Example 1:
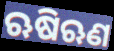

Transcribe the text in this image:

ଋଷିଋଣ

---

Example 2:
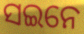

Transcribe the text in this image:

ସଇନେ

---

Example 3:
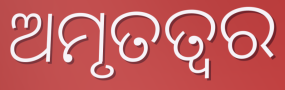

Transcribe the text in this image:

ଅମୃତତ୍ଵର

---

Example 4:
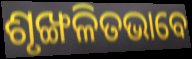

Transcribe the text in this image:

ଶୃଙ୍ଖଳିତଭାବେ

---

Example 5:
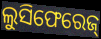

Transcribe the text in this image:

ଲୁସିଫେରେଜ୍